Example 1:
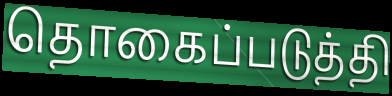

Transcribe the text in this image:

தொகைப்படுத்தி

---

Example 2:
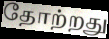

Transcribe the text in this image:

தோற்றது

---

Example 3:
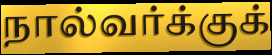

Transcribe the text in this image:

நால்வர்க்குக்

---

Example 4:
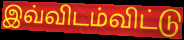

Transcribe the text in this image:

இவ்விடம்விட்டு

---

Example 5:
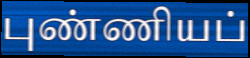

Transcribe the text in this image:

புண்ணியப்